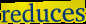
reduces